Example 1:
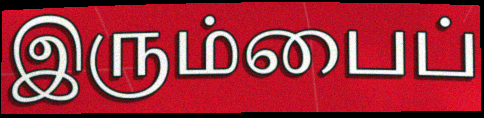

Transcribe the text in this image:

இரும்பைப்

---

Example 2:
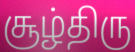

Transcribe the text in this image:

சூழ்திரு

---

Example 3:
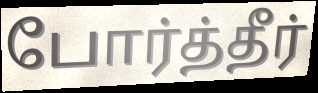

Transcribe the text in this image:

போர்த்தீர்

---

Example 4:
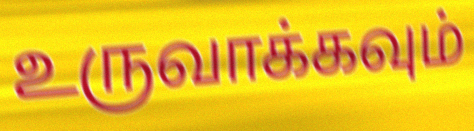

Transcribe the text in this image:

உருவாக்கவும்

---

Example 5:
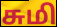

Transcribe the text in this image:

சுமி